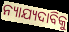
ନ୍ୟାଯ୍ୟଦାବିକୁ